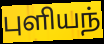
புளியந்